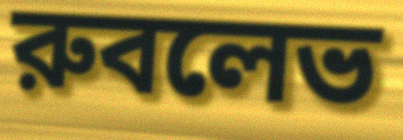
রুবলেভ